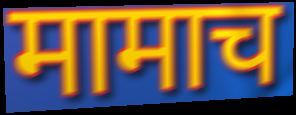
मामाच